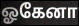
ஓகேனா